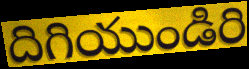
దిగియుండిరి